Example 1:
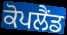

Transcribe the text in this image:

ਕੋਪਲੈਂਡ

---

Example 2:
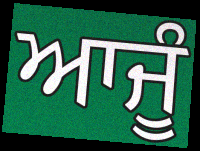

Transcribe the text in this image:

ਆਜੂੰ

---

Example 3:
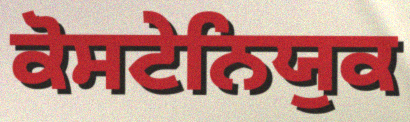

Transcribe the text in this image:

ਕੋਸਟੇਨਿਯੁਕ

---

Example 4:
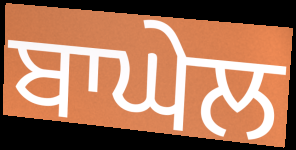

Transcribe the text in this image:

ਬਾਘੇਲ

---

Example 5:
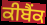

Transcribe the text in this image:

ਕੀਬੈਂਕ